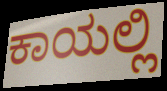
ಕಾಯಲ್ಲಿ